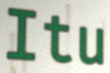
Itu